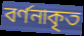
বর্ণনাকৃত